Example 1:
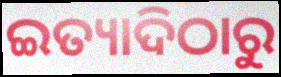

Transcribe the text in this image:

ଇତ୍ୟାଦିଠାରୁ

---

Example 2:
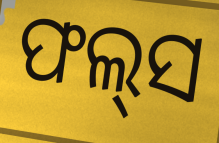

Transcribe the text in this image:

ଫଲ୍‌ସ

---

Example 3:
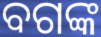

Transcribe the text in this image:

ବଗଙ୍କ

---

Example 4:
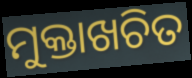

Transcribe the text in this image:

ମୁକ୍ତାଖଚିତ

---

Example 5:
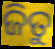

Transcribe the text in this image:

ଜିତୁ